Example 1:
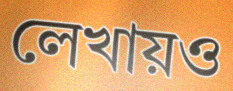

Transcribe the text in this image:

লেখায়ও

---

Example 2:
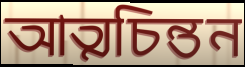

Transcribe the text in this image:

আত্মচিন্তন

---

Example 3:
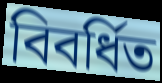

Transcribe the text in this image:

বিবর্ধিত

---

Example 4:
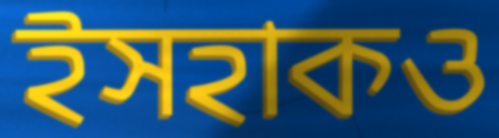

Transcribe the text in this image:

ইসহাকও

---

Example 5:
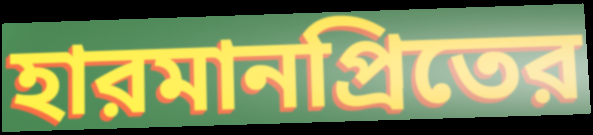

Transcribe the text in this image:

হারমানপ্রিতের